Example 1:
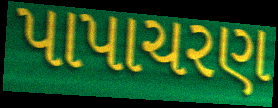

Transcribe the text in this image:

પાપાચરણ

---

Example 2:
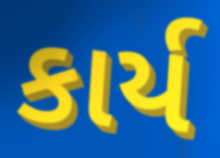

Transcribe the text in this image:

કાર્ય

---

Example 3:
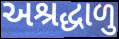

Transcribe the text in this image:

અશ્રદ્ધાળુ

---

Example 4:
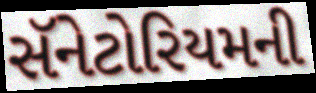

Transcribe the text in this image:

સૅનેટોરિયમની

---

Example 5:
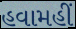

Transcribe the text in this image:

હવામહીં